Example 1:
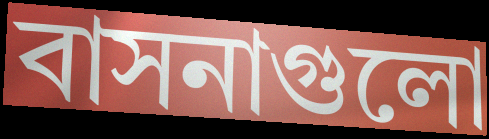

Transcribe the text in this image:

বাসনাগুলো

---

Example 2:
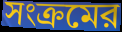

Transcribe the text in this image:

সংক্রমের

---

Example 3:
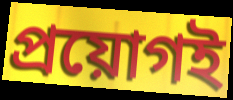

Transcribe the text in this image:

প্রয়োগই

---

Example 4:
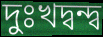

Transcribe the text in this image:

দুঃখদ্বন্দ্ব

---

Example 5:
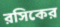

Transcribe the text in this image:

রসিকের